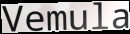
Vemula